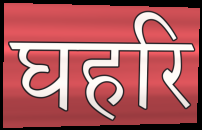
घहरि